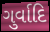
ગુર્વાદિ